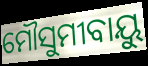
ମୌସୁମୀବାୟୁ